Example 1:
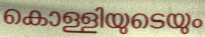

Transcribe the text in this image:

കൊള്ളിയുടെയും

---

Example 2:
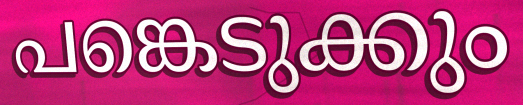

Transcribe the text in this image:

പങ്കെടുക്കും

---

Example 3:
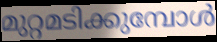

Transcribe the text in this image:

മുറ്റമടിക്കുമ്പോൾ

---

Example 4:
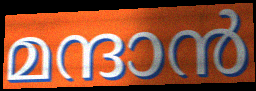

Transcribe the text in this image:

മന്ദാൻ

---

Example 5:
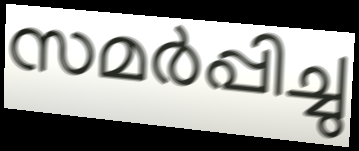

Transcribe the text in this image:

സമർപ്പിച്ചു